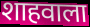
शाहवाला